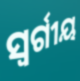
ସ୍ୱର୍ଗୀୟ